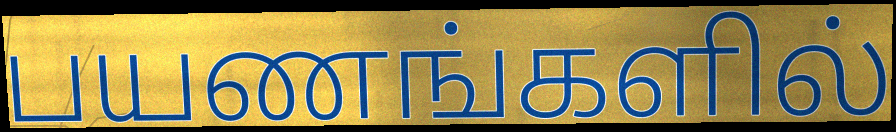
பயணங்களில்